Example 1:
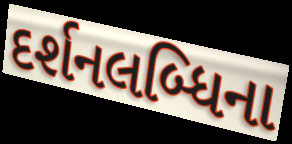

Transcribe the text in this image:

દર્શનલબ્ધિના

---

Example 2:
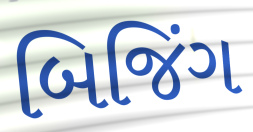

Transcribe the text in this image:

બિજિંગ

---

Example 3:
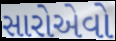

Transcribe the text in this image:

સારોએવો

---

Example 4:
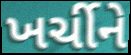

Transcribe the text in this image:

ખર્ચીને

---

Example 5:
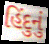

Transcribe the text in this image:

હિંદુનું